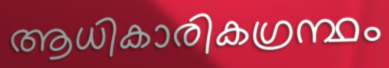
ആധികാരികഗ്രന്ഥം